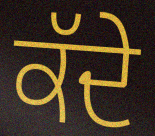
ਕੱਦੇ